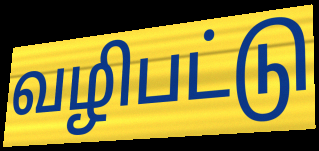
வழிபட்டு